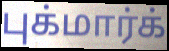
புக்மார்க்